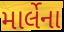
માર્લેના